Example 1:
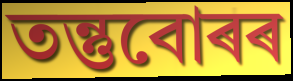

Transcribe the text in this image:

তন্তুবোৰৰ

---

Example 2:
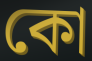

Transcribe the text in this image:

কো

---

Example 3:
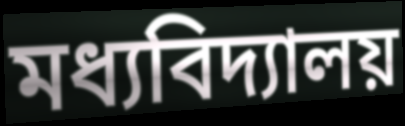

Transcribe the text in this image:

মধ্যবিদ্যালয়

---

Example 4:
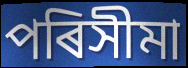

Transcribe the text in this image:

পৰিসীমা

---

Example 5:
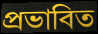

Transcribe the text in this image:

প্ৰভাবিত